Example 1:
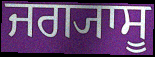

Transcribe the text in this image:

ਜਗ੍ਯਾਸੂ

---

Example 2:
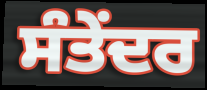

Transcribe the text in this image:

ਸੰਤੇਂਦਰ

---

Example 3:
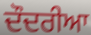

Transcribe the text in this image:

ਦੌਦਰੀਆ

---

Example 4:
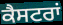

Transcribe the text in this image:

ਕੈਸਟਰਾਂ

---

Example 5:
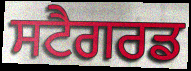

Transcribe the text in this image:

ਸਟੈਗਰਡ